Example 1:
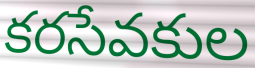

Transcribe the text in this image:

కరసేవకుల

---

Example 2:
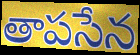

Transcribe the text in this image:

తాపసేన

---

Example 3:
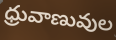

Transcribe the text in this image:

ధ్రువాణువుల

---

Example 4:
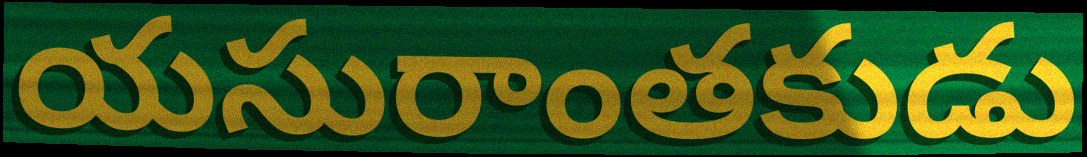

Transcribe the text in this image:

యసురాంతకుడు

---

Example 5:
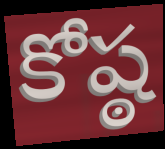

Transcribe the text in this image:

కోష్ఠ